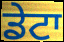
ਡੇਟਾ